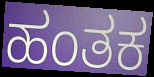
ಹಂತಕ